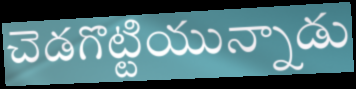
చెడగొట్టియున్నాడు